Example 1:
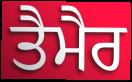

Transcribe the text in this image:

ਤੈਮੈਰ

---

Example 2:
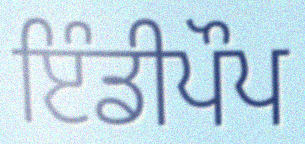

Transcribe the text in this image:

ਇੰਡੀਪੌਪ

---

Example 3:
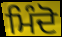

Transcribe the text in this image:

ਮਿੰਦੋ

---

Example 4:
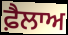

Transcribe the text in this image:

ਫ਼ੈਲਾਅ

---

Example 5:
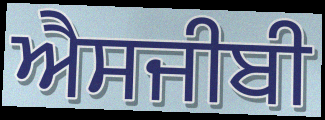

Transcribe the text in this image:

ਐਸਜੀਬੀ